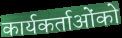
कार्यकर्ताओंको